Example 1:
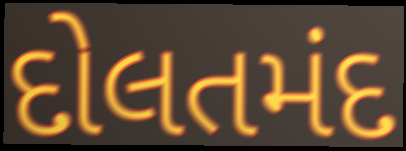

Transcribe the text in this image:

દોલતમંદ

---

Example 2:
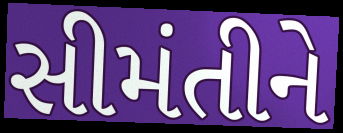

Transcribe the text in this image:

સીમંતીને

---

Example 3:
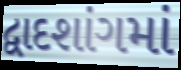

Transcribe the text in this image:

દ્વાદશાંગમાં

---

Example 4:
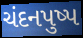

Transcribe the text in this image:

ચંદનપુષ્પ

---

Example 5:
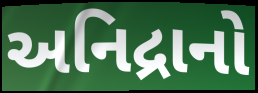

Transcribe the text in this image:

અનિદ્રાનો